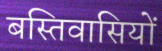
बस्तिवासियों